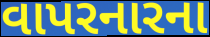
વાપરનારના